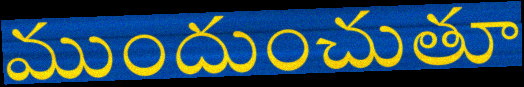
ముందుంచుతూ